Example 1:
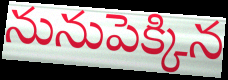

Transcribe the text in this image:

నునుపెక్కిన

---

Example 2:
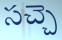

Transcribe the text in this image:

సచ్చె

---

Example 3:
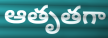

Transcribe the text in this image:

ఆతృతగా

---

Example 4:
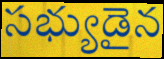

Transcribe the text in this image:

సభ్యుడైన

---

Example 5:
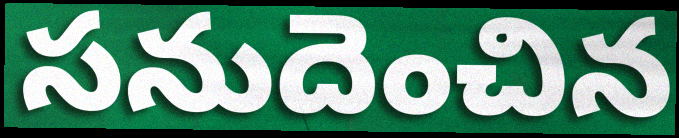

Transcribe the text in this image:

సనుదెంచిన